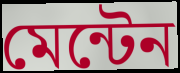
মেন্টেন